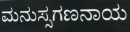
ಮನುಸ್ಸಗಣನಾಯ